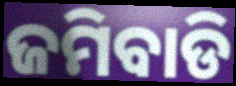
ଜମିବାଡି